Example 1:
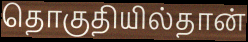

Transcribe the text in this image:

தொகுதியில்தான்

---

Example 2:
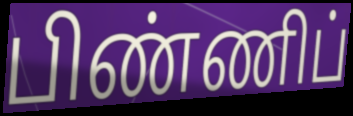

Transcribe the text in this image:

பிண்ணிப்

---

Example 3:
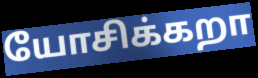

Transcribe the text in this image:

யோசிக்கறா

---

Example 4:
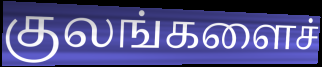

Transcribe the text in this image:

குலங்களைச்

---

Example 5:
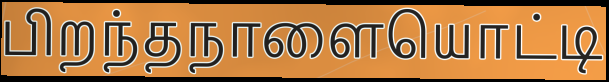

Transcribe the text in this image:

பிறந்தநாளையொட்டி